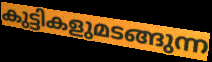
കുട്ടികളുമടങ്ങുന്ന